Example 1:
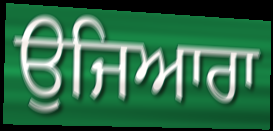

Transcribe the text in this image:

ਉਜਿਆਰਾ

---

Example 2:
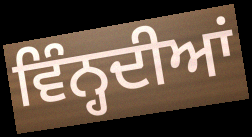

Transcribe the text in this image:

ਵਿੰਨ੍ਹਦੀਆਂ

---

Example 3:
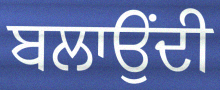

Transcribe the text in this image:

ਬਲਾਉਂਦੀ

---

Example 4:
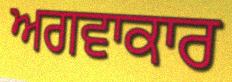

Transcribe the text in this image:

ਅਗਵਾਕਾਰ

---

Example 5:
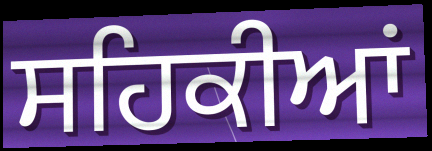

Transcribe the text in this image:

ਸਹਿਕੀਆਂ